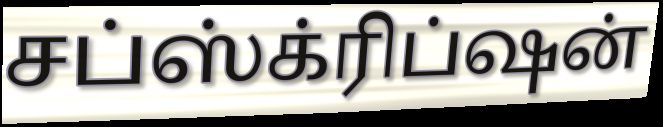
சப்ஸ்க்ரிப்ஷன்